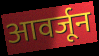
आवर्जून